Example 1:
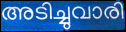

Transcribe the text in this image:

അടിച്ചുവാരി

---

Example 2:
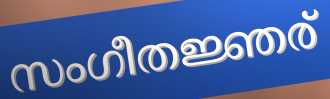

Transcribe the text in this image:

സംഗീതജ്ഞര്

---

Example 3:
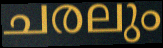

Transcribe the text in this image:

ചരലും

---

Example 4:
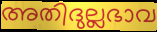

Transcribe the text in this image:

അതിദുല്ലഭാവ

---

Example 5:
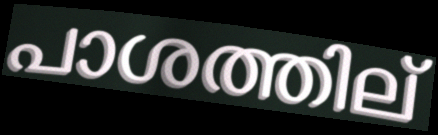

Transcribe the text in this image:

പാശത്തില്